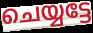
ചെയ്യട്ടേ